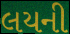
લયની